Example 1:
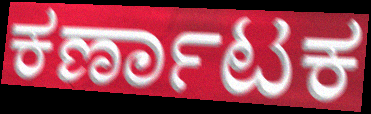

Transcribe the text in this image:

ಕರ್ಣಾಟಕ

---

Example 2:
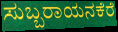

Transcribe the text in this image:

ಸುಬ್ಬರಾಯನಕೆರೆ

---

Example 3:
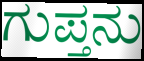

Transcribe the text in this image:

ಗುಪ್ತನು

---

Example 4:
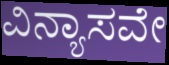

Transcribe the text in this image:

ವಿನ್ಯಾಸವೇ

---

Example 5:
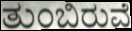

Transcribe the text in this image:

ತುಂಬಿರುವೆ